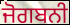
ਜੋਗਬਨੀ